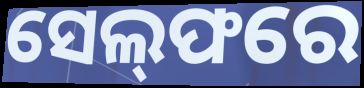
ସେଲ୍‌ଫରେ